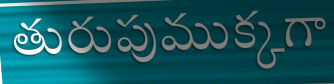
తురుపుముక్కగా